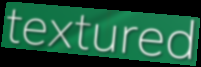
textured